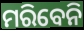
ମରିବେନି